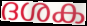
ദശക